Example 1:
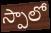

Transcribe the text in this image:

స్పాలో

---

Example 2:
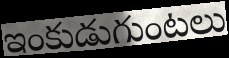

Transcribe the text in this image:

ఇంకుడుగుంటలు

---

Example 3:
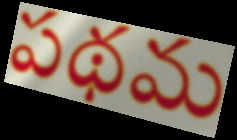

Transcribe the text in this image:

పథమ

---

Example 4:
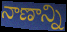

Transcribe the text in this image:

నాణాన్ని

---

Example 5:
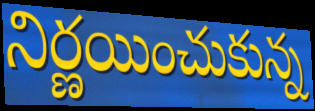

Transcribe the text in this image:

నిర్ణయించుకున్న